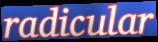
radicular